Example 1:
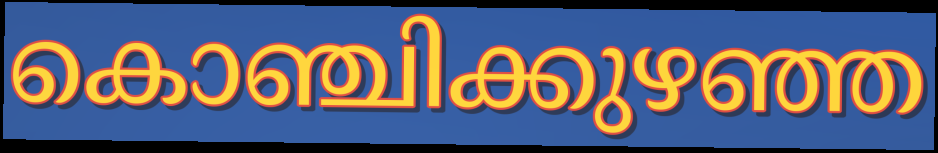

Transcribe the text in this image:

കൊഞ്ചിക്കുഴഞ്ഞ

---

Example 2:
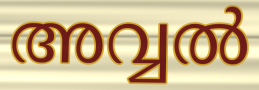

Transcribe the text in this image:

അവ്വൽ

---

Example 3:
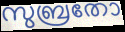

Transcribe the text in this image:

സുബ്രതോ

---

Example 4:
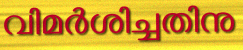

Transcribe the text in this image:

വിമർശിച്ചതിനു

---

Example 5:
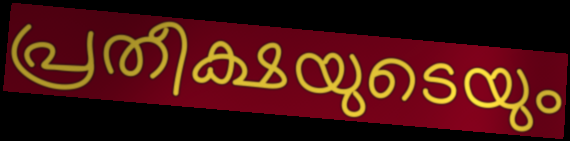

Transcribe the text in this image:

പ്രതീക്ഷയുടെയും